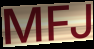
MFJ